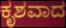
ಕೃಶವಾದ